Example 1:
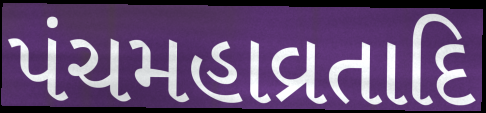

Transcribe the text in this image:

પંચમહાવ્રતાદિ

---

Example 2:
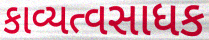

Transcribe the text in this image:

કાવ્યત્વસાધક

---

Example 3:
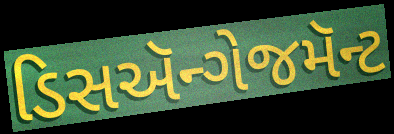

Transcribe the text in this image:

ડિસઍન્ગેજમૅન્ટ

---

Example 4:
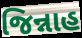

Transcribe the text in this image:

જિન્નાહ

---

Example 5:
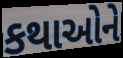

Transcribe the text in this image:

કથાઓને